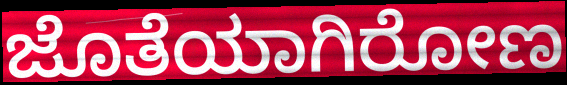
ಜೊತೆಯಾಗಿರೋಣ